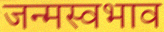
जन्मस्वभाव